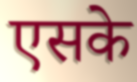
एसके